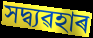
সদ্ব্যৱহাৰ